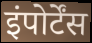
इंपोर्टेंस